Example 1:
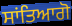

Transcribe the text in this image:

ਸਾਂਤਿਆਗੋ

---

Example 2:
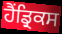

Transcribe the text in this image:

ਹੈਂਡ੍ਰਿਕਸ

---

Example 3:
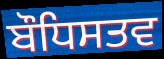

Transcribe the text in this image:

ਬੌਧਿਸਤਵ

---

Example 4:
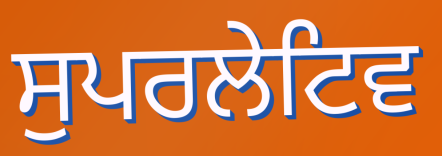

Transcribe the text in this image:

ਸੁਪਰਲੇਟਿਵ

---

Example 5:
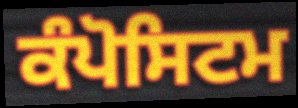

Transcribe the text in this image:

ਕੰਪੋਸਿਟਮ